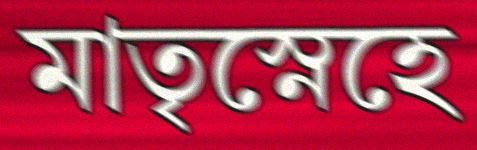
মাতৃস্নেহে